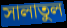
সালাতুল